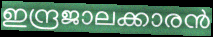
ഇന്ദ്രജാലക്കാരൻ